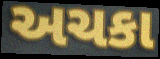
અચકા